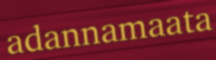
adannamaata